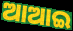
ଆଆଇ